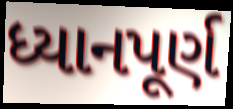
ધ્યાનપૂર્ણ